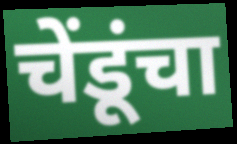
चेंडूंचा